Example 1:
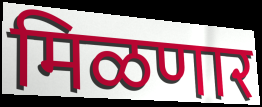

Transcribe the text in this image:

मिळणार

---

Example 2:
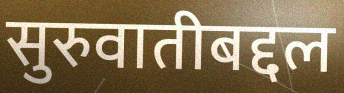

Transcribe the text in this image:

सुरुवातीबद्दल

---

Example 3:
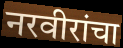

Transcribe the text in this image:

नरवीरांचा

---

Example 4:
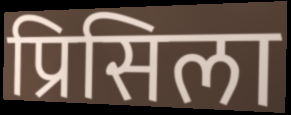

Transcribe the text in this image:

प्रिसिला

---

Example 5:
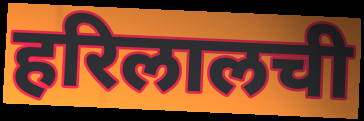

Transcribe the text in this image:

हरिलालची